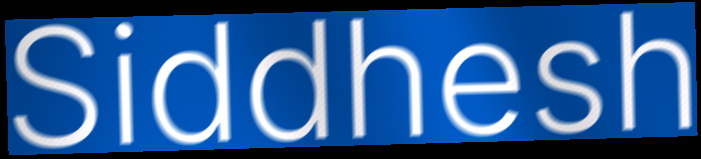
Siddhesh